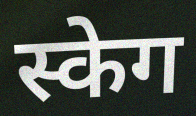
स्केग